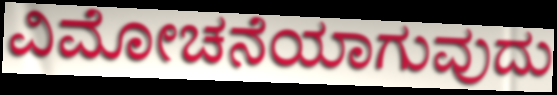
ವಿಮೋಚನೆಯಾಗುವುದು